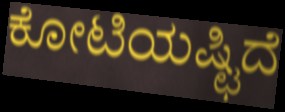
ಕೋಟಿಯಷ್ಟಿದೆ